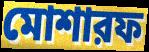
মোশারফ